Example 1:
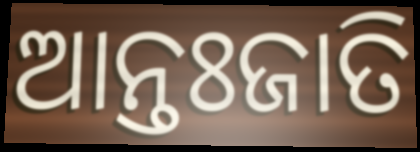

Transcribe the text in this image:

ଆନ୍ତଃଜାତି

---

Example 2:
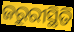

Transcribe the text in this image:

ଜରୁରୀସ୍ଥିତି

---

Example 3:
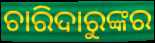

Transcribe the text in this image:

ଚାରିଦାରୁଙ୍କର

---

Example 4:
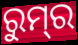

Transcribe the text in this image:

ରୁମ୍‍ର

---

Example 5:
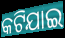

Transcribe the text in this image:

କଟିଯାଇ